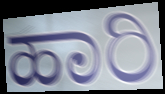
ಹಾರಿ